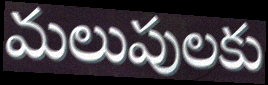
మలుపులకు